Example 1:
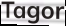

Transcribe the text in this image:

Tagor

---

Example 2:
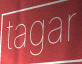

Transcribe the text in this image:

tagar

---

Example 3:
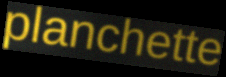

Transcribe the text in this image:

planchette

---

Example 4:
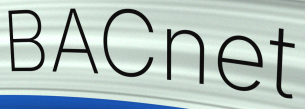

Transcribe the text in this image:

BACnet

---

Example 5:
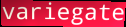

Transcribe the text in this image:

variegate